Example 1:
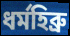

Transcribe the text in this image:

ধৰ্মহিব্ৰু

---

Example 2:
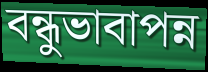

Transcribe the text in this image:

বন্ধুভাবাপন্ন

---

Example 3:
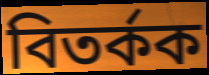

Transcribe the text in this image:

বিতৰ্কক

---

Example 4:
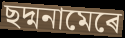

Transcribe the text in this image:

ছদ্মনামেৰে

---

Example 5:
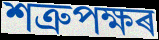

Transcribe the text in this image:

শত্ৰুপক্ষৰ